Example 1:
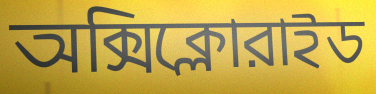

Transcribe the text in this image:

অক্সিক্লোরাইড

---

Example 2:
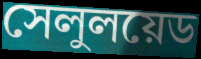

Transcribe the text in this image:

সেলুলয়েড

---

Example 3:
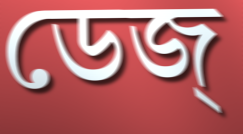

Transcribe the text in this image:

ডেজ্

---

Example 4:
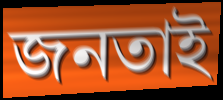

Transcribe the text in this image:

জনতাই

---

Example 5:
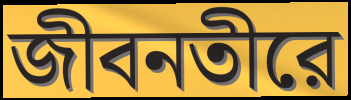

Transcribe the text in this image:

জীবনতীরে